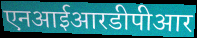
एनआईआरडीपीआर